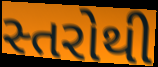
સ્તરોથી